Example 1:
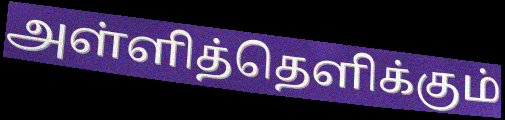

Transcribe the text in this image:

அள்ளித்தெளிக்கும்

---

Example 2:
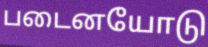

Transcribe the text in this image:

படைனயோடு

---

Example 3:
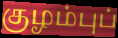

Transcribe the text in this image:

குழம்புப்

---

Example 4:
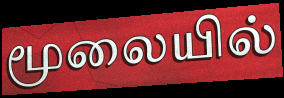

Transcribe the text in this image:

மூலையில்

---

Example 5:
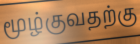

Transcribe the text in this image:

மூழ்குவதற்கு